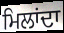
ਮਿਲਾਂਦਾ